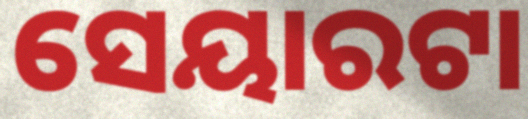
ସେୟାରଟା